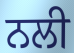
ਨਲੀ